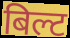
बिल्‍ट